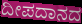
ದೀಪದಾನದ